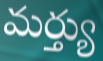
మర్త్యు